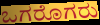
ಒಗರೊಗರು